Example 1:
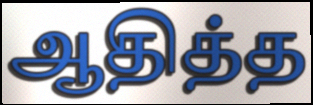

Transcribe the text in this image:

ஆதித்த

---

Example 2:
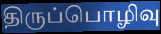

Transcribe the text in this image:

திருப்பொழிவு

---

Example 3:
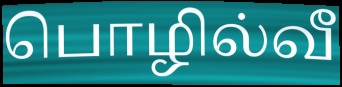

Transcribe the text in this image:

பொழில்வீ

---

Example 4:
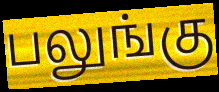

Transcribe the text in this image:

பலுங்கு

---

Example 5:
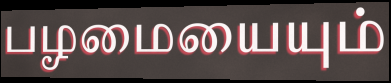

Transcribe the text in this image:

பழமையையும்